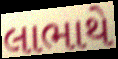
લાભાથે